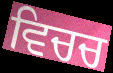
ਵਿਚਚ